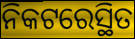
ନିକଟରେସ୍ଥିତ